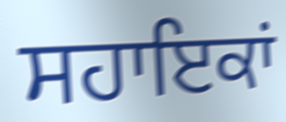
ਸਹਾਇਕਾਂ